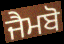
ਜੈਮਬੋ